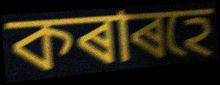
কৰাৰহে